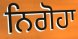
ਨਿਗੋਹਾ